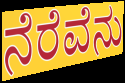
ನೆರೆವೆನು